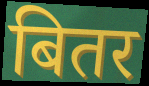
बितर